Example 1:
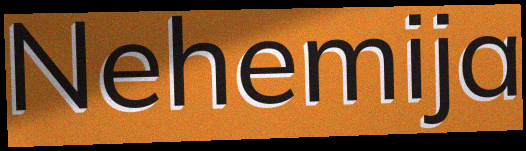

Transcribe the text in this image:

Nehemija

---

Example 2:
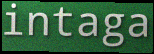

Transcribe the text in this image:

intaga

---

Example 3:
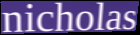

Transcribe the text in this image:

nicholas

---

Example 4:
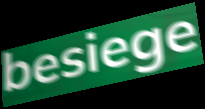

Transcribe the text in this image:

besiege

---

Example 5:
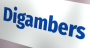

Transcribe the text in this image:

Digambers